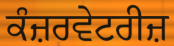
ਕੰਜ਼ਰਵੇਟਰੀਜ਼